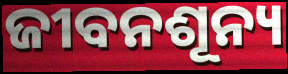
ଜୀବନଶୂନ୍ୟ